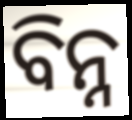
ବିନ୍ନ